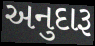
અનુદારૂ